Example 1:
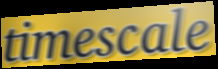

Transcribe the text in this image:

timescale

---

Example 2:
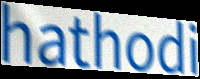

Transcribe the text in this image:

hathodi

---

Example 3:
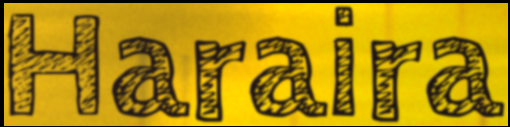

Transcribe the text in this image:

Haraira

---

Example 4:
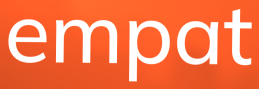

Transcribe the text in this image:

empat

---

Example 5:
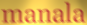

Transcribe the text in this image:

manala